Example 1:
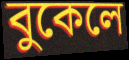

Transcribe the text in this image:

বুকেলে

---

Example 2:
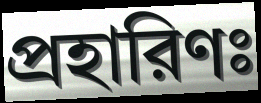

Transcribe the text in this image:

প্রহারিণঃ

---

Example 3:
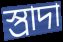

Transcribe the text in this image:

স্ত্রাদা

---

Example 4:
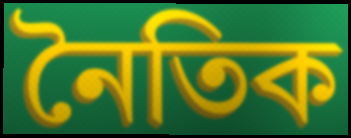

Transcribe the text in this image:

নৈতিক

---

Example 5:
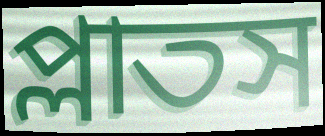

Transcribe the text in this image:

প্লাতস